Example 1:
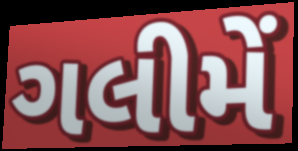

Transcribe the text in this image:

ગલીમેં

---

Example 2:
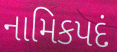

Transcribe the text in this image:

નામિકપદં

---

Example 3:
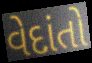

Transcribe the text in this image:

વેદાંતો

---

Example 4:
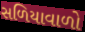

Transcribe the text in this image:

સળિયાવાળો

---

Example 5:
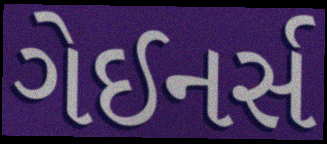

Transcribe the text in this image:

ગેઈનર્સ